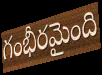
గంభీరమైంది